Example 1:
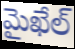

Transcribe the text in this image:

మైఖేల్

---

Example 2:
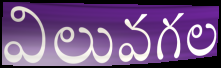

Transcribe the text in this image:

విలువగల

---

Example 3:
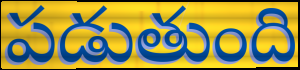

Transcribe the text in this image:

పడుతుంది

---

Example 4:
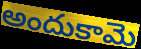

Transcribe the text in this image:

అందుకామె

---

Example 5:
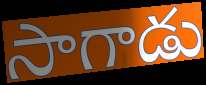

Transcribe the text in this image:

సాగాడు